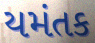
યમંતક